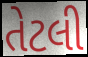
તેટલી